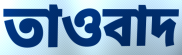
তাওবাদ